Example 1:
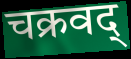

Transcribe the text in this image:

चक्रवद्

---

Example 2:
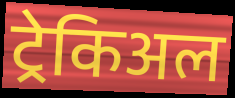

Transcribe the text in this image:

ट्रेकिअल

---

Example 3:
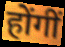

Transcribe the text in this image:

होंगीं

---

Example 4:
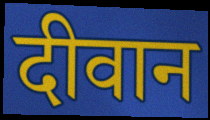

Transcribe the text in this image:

दीवान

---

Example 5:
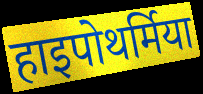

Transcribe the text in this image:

हाइपोथर्मिया